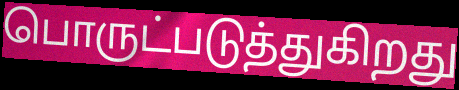
பொருட்படுத்துகிறது